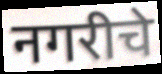
नगरीचे